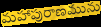
మహాపురాణమును